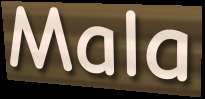
Mala